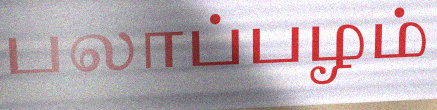
பலாப்பழம்